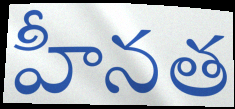
హీనత